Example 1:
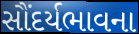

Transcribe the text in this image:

સૌંદર્યભાવના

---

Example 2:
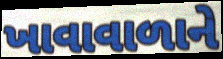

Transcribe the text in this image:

ખાવાવાળાને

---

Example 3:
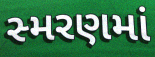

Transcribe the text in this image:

સ્મરણમાં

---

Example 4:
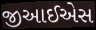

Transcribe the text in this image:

જીઆઈએસ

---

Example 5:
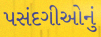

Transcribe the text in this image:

પસંદગીઓનું